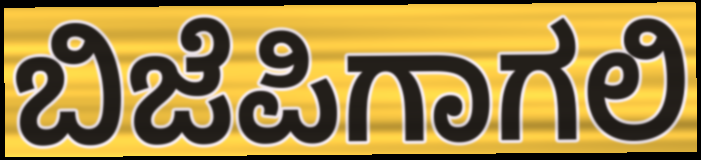
ಬಿಜೆಪಿಗಾಗಲಿ